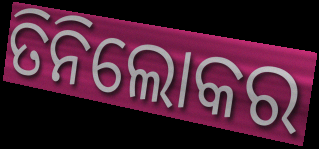
ତିନିଲୋକର